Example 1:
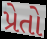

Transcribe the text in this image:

પ્રેતો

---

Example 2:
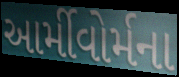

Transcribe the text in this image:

આર્મીવોર્મના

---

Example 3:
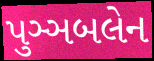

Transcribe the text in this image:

પુઞ્ઞબલેન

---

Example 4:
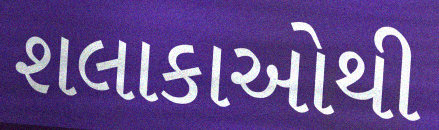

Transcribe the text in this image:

શલાકાઓથી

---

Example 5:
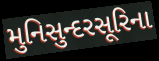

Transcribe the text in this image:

મુનિસુન્દરસૂરિના